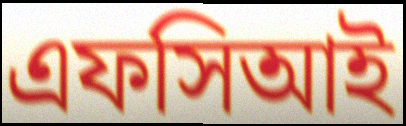
এফসিআই